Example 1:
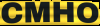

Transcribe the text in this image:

CMHO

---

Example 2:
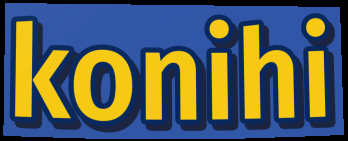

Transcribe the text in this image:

konihi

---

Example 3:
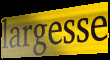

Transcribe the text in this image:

largesse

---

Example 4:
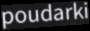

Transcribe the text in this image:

poudarki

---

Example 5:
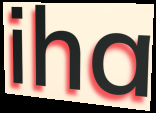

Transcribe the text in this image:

iha